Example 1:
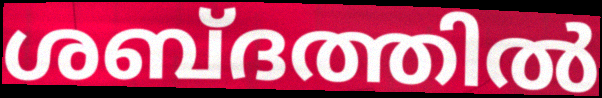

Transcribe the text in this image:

ശബ്ദത്തിൽ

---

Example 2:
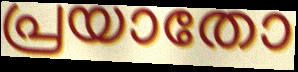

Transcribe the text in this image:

പ്രയാതോ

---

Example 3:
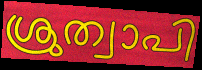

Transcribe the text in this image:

ശ്രുത്വാപി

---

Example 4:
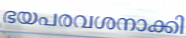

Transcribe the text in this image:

ഭയപരവശനാക്കി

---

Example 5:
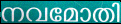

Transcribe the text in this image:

നവമോതി